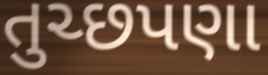
તુચ્છપણા